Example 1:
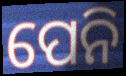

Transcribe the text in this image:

ପେନି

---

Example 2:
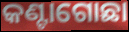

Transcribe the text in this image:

କଣ୍ଟାଗୋଛା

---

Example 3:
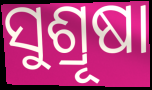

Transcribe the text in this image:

ସୁଶ୍ରୂଷା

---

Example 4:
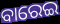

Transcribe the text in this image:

ବାରେଇ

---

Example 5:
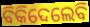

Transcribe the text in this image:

ବିକିଦେଲେବି